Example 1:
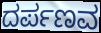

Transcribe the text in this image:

ದರ್ಪಣವ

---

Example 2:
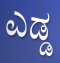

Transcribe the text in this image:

ಎಡ್ಡ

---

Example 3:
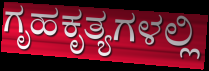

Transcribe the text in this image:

ಗೃಹಕೃತ್ಯಗಳಲ್ಲಿ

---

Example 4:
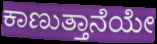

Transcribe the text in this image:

ಕಾಣುತ್ತಾನೆಯೇ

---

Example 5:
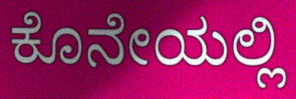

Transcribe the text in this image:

ಕೊನೇಯಲ್ಲಿ